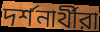
দর্শনার্থীরা